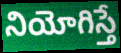
నియోగిస్తే